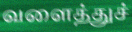
வளைத்துச்